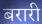
बरारी